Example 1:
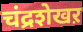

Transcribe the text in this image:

चंद्रशेखऱ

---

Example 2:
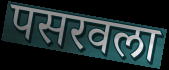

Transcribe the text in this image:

पसरवला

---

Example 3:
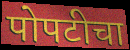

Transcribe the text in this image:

पोपटीचा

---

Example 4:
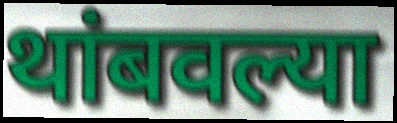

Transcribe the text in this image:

थांबवल्या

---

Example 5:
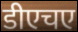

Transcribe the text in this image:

डीएचए